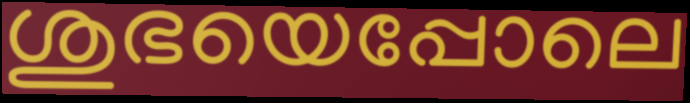
ശുഭയെപ്പോലെ